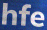
hfe